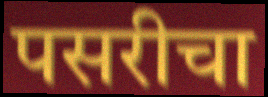
पसरीचा